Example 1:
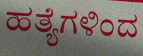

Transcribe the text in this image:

ಹತ್ಯೆಗಳಿಂದ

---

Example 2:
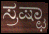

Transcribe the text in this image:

ಸ್ರಷ್ಟಾ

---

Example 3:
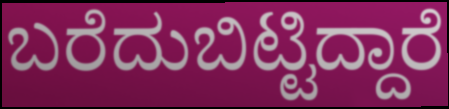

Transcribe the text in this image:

ಬರೆದುಬಿಟ್ಟಿದ್ದಾರೆ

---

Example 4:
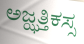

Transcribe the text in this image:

ಅಜ್ಝತ್ತಿಕಸ್ಸ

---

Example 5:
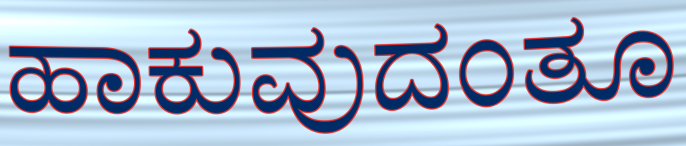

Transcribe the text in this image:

ಹಾಕುವುದಂತೂ